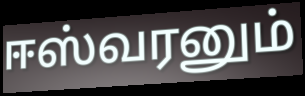
ஈஸ்வரனும்